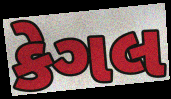
કેગલ